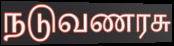
நடுவணரசு